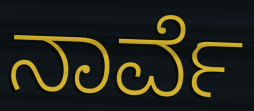
ನಾರ್ವೆ